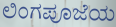
ಲಿಂಗಪೂಜೆಯ